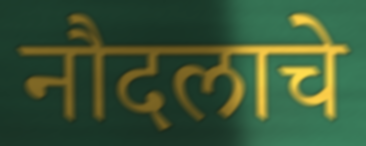
नौदलाचे